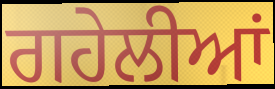
ਗਹੇਲੀਆਂ